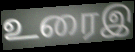
உரைஇ